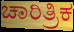
ಚಾರಿತ್ರಿಕ